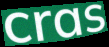
cras